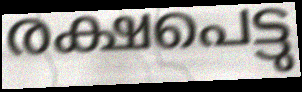
രക്ഷപെട്ടു